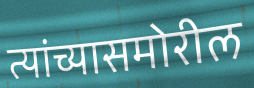
त्यांच्यासमोरील